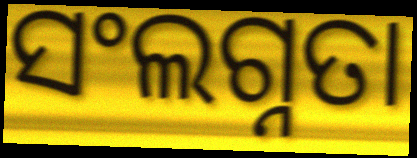
ସଂଲଗ୍ନତା